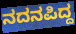
ನದನಪಿದ್ದ